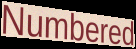
Numbered